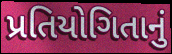
પ્રતિયોગિતાનું